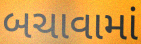
બચાવામાં